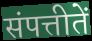
संपत्तीतें